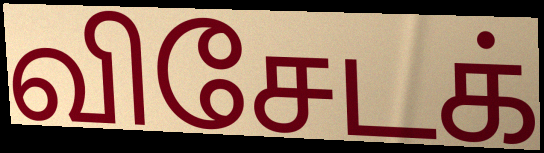
விசேடக்